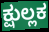
ಕ್ಷುಲ್ಲಕ